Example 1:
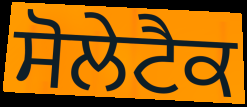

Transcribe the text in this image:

ਸੋਲੇਟੈਕ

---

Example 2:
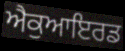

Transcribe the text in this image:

ਐਕੁਆਇਰਡ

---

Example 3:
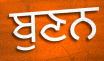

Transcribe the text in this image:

ਬੁਣਨ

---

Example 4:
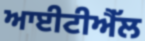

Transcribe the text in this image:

ਆਈਟੀਐੱਲ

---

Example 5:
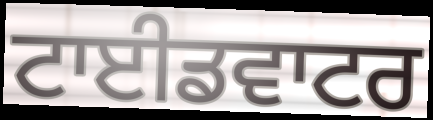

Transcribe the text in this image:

ਟਾਈਡਵਾਟਰ